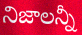
నిజాలన్నీ